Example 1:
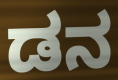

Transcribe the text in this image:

ಡನ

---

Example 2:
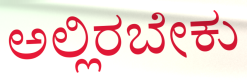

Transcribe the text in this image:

ಅಲ್ಲಿರಬೇಕು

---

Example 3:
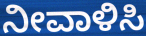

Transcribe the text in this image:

ನೀವಾಳಿಸಿ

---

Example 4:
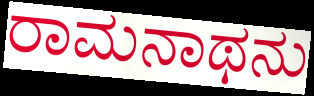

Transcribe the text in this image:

ರಾಮನಾಥನು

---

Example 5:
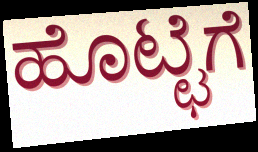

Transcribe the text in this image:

ಹೊಟ್ಟೆಗೆ